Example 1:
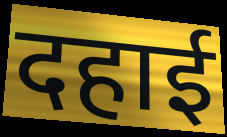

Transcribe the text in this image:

दहाई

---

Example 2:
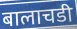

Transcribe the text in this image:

बालाचडी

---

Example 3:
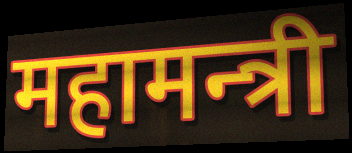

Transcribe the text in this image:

महामन्त्री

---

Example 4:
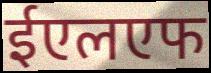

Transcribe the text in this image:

ईएलएफ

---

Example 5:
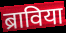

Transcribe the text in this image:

ब्राविया